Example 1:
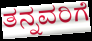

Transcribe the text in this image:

ತನ್ನವರಿಗೆ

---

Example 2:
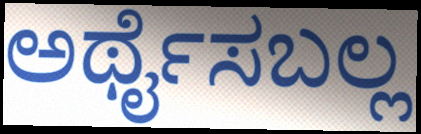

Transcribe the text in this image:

ಅರ್ಥೈಸಬಲ್ಲ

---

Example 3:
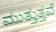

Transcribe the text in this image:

ಮುತ್ತುತ್ತವೆ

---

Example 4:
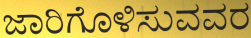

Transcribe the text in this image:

ಜಾರಿಗೊಳಿಸುವವರ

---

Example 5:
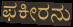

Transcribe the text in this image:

ಫಕೀರನು